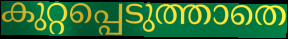
കുറ്റപ്പെടുത്താതെ